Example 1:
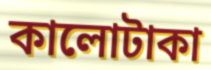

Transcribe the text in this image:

কালোটাকা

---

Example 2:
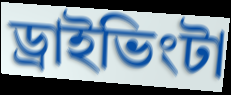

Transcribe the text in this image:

ড্রাইভিংটা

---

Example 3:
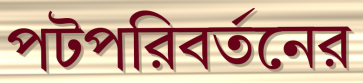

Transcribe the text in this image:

পটপরিবর্তনের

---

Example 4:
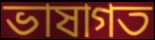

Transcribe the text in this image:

ভাষাগত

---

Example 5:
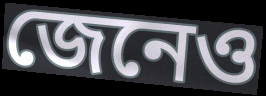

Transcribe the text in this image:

জেনেও